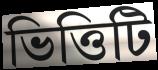
ভিত্তিটি